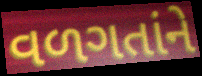
વળગતાંને